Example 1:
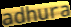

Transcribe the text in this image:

adhura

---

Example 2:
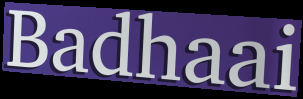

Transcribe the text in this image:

Badhaai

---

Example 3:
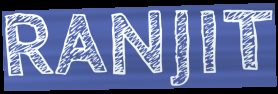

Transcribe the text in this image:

RANJIT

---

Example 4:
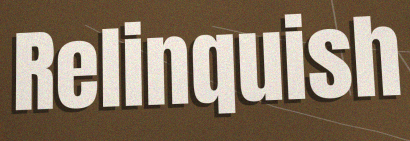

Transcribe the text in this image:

Relinquish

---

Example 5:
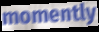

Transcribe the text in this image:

momently